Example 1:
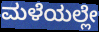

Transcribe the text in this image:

ಮಳೆಯಲ್ಲೇ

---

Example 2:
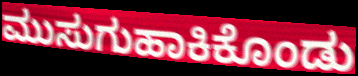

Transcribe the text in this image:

ಮುಸುಗುಹಾಕಿಕೊಂಡು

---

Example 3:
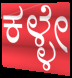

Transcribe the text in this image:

ಕಳ್ಳೇ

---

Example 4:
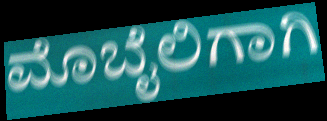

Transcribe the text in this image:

ಮೊಬೈಲಿಗಾಗಿ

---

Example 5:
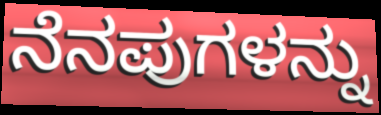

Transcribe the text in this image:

ನೆನಪುಗಳನ್ನು